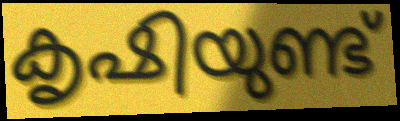
കൃഷിയുണ്ട്